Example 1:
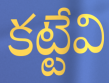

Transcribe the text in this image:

కట్టేవి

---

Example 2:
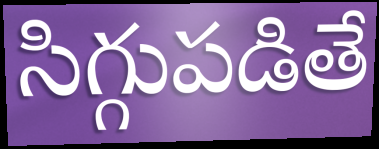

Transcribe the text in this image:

సిగ్గుపడితే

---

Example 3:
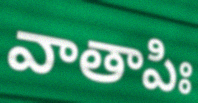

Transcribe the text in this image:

వాతాపిః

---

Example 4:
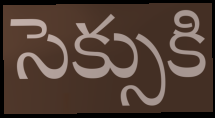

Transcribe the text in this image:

సెక్సుకి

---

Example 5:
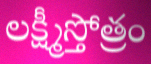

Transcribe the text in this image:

లక్ష్మీస్తోత్రం